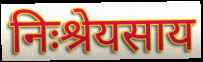
निःश्रेयसाय